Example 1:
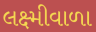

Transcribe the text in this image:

લક્ષ્મીવાળા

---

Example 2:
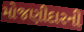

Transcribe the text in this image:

મોજણીદારની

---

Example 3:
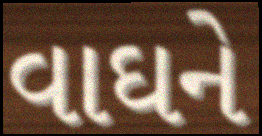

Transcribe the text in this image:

વાઘને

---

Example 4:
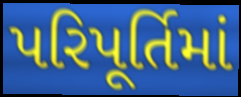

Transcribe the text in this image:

પરિપૂર્તિમાં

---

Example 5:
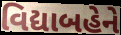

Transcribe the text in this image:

વિદ્યાબહેને